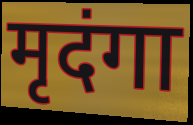
मृदंगा